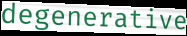
degenerative